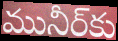
మునీర్‌కు